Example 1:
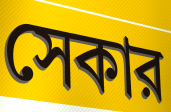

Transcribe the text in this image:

সেকার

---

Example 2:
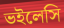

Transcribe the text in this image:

ভইলেসি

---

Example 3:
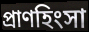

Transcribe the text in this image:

প্রাণহিংসা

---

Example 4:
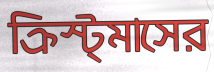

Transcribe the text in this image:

ক্রিস্ট্‌মাসের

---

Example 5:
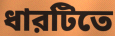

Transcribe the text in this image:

ধারটিতে